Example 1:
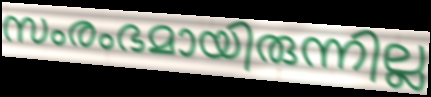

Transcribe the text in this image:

സംരംഭമായിരുന്നില്ല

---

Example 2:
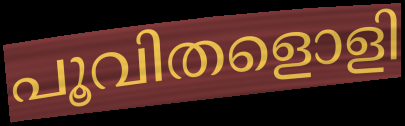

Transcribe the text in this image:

പൂവിതളൊളി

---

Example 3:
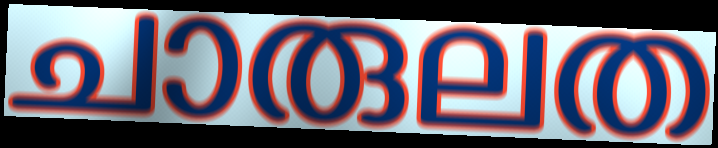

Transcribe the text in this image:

ചാരുലത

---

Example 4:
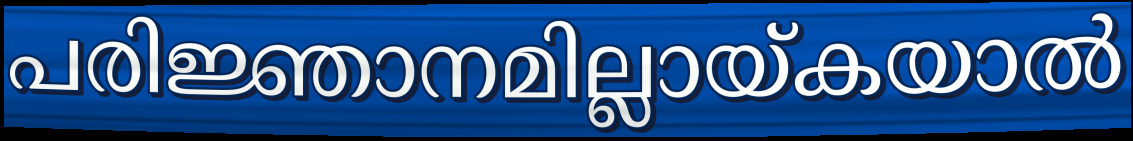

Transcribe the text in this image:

പരിജ്ഞാനമില്ലായ്കയാൽ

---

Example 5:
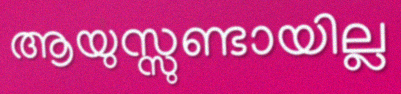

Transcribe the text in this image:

ആയുസ്സുണ്ടായില്ല